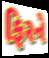
ફિરને